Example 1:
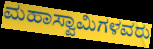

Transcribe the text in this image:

ಮಹಾಸ್ವಾಮಿಗಳವರು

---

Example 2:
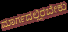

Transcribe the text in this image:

ಮಾರ್ಗದಲ್ಲಿರಬೇಕು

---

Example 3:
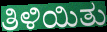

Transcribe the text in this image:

ತಿಳಿಯಿತು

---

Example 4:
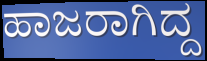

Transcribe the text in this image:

ಹಾಜರಾಗಿದ್ದ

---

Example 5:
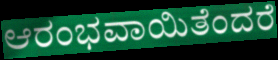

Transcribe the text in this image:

ಆರಂಭವಾಯಿತೆಂದರೆ